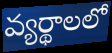
వ్యర్థాలలో